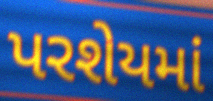
પરશેયમાં